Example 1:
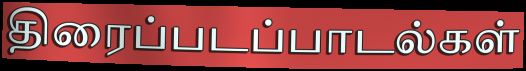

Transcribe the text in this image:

திரைப்படப்பாடல்கள்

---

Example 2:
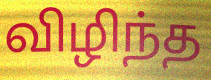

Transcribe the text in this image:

விழிந்த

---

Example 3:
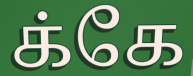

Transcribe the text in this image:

க்கே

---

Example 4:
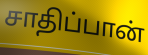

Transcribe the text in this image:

சாதிப்பான்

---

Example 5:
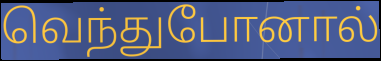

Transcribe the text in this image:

வெந்துபோனால்